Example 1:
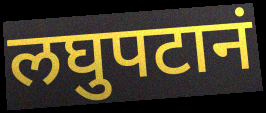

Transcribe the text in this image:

लघुपटानं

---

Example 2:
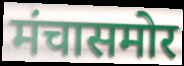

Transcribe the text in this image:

मंचासमोर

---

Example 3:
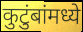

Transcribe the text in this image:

कुटुंबांमध्ये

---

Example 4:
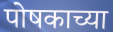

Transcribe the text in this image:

पोषकाच्या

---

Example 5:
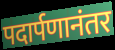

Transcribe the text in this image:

पदार्पणानंतर